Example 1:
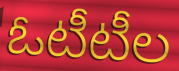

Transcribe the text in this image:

ఓటీటీల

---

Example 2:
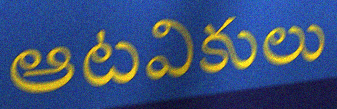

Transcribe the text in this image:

ఆటవికులు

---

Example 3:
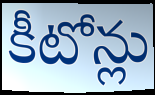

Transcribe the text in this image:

కీటోన్లు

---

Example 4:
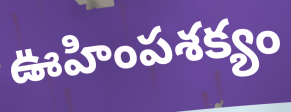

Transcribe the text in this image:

ఊహింపశక్యం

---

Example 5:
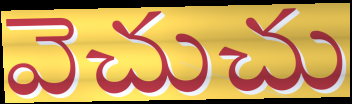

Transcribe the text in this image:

వెచుచు